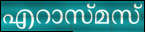
എറാസ്മസ്